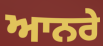
ਆਨਰੇ